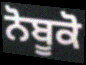
ਨੋਬੂਕੋ